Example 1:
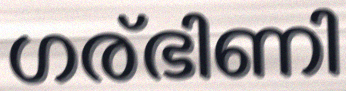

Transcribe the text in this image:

ഗര്ഭിണി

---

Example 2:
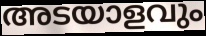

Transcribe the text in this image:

അടയാളവും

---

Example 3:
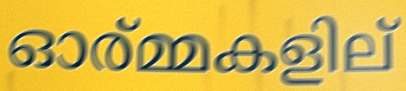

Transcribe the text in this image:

ഓര്മ്മകളില്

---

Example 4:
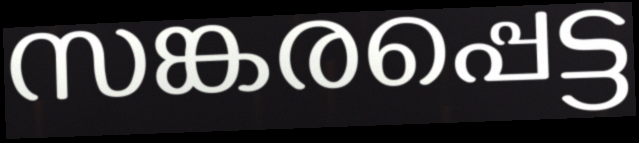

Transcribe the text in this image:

സങ്കരപ്പെട്ട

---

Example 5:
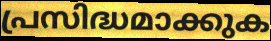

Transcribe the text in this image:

പ്രസിദ്ധമാക്കുക